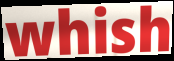
whish